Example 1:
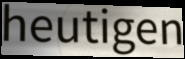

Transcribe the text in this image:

heutigen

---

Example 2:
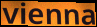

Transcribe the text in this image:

vienna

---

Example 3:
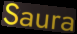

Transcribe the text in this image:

Saura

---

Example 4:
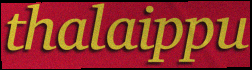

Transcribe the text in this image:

thalaippu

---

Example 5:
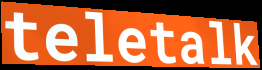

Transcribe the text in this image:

teletalk